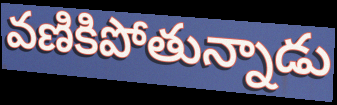
వణికిపోతున్నాడు